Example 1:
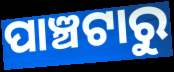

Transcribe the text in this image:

ପାଞ୍ଚଟାରୁ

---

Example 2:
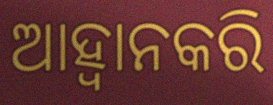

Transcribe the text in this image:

ଆହ୍ୱାନକରି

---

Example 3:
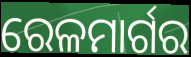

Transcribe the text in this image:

ରେଳମାର୍ଗର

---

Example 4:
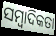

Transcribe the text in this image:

ସମ୍ବାଦିକତା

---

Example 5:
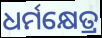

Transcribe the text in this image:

ଧର୍ମକ୍ଷେତ୍ର